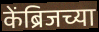
केंब्रिजच्या